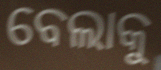
ବେଲାକୁ